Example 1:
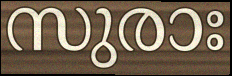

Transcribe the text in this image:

സുരാഃ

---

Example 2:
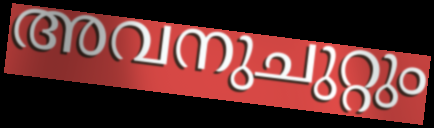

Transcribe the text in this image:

അവനുചുറ്റും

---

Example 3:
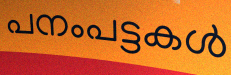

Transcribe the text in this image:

പനംപട്ടകൾ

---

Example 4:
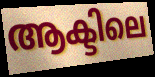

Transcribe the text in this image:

ആക്ടിലെ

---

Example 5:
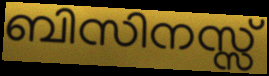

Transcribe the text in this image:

ബിസിനസ്സ്